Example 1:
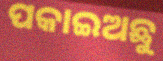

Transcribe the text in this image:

ପକାଇଅଛୁ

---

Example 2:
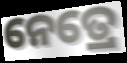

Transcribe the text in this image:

ନେତ୍ରେ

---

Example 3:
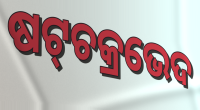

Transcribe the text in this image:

ଷଟ୍‌ଚକ୍ରଭେଦ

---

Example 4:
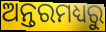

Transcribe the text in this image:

ଅନ୍ତରମଧ୍ୟରୁ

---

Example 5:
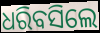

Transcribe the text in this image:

ଧରିବସିଲେ